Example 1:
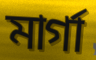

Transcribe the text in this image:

মাৰ্গা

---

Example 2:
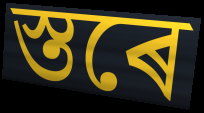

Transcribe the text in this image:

স্তৰে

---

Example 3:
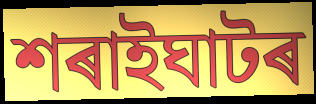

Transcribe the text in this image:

শৰাইঘাটৰ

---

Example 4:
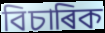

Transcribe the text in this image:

বিচাৰিক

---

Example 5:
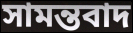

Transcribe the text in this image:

সামন্তবাদ